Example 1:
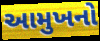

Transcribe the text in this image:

આમુખનો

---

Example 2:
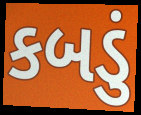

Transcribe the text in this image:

કબડું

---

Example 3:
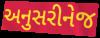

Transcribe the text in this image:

અનુસરીનેજ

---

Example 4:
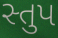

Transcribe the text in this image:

સ્તુપ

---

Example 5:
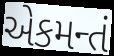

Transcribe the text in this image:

એકમન્તં